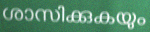
ശാസിക്കുകയും